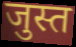
जुस्त